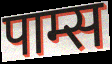
पाम्स